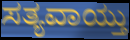
ಸತ್ಯವಾಯ್ತು